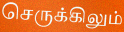
செருக்கிலும்